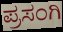
ಪ್ರಸಂಗಿ